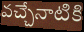
వచ్చేనాటికి